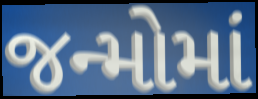
જન્મોમાં